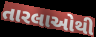
તારલાઓથી